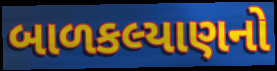
બાળકલ્યાણનો